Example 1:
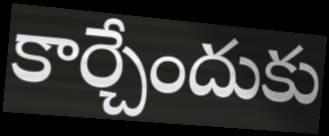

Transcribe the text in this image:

కార్చేందుకు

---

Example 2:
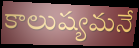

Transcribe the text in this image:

కాలుష్యమనే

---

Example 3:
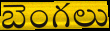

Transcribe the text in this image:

బెంగలు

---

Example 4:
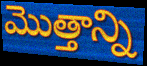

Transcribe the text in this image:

మొత్తాన్ని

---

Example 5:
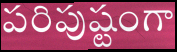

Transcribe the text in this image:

పరిపుష్టంగా